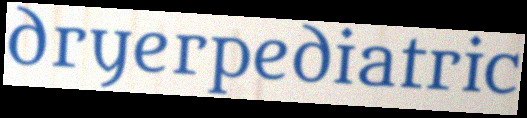
dryerpediatric